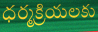
ధర్మక్రియలకు